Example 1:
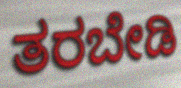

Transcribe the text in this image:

ತರಬೇಡಿ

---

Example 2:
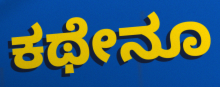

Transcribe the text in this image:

ಕಥೇನೂ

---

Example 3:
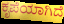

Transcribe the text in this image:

ಕೃಪೆಯಾಗಿದೆ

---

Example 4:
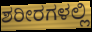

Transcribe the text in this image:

ಶರೀರಗಳಲ್ಲಿ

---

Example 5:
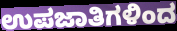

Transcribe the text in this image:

ಉಪಜಾತಿಗಳಿಂದ